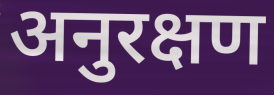
अनुरक्षण